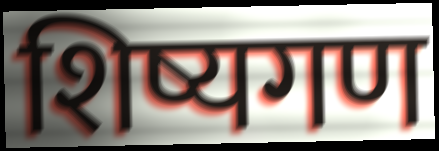
शिष्यगण